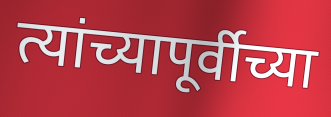
त्यांच्यापूर्वीच्या